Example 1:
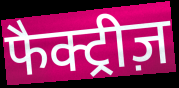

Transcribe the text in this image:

फैक्ट्रीज़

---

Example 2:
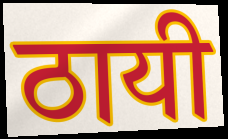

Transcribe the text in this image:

ठायी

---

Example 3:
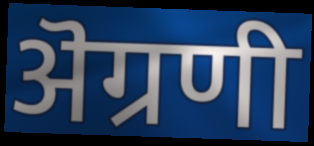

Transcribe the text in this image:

ऄग्रणी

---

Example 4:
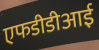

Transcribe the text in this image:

एफडीडीआई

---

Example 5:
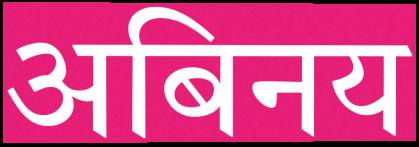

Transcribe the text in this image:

अबिनय